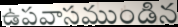
ఉపవాసముండిన